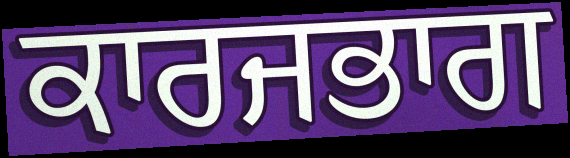
ਕਾਰਜਭਾਗ